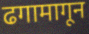
ढगामागून